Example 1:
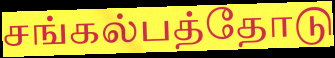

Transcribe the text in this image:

சங்கல்பத்தோடு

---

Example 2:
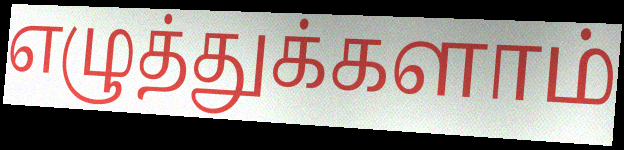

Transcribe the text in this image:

எழுத்துக்களாம்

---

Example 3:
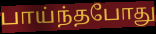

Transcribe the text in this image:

பாய்ந்தபோது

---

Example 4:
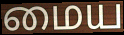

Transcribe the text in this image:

மைய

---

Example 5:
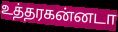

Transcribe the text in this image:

உத்தரகன்னடா